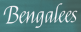
Bengalees